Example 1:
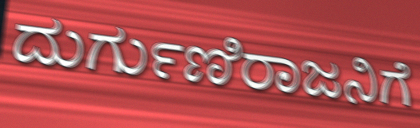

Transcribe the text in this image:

ದುರ್ಗುಣಿರಾಜನಿಗೆ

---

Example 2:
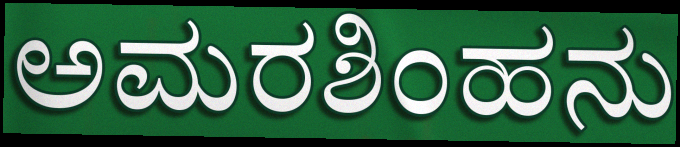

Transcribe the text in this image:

ಅಮರಶಿಂಹನು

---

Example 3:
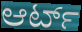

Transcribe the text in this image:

ಆರ್ಟ್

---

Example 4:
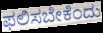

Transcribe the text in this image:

ಫಲಿಸಬೇಕೆಂದು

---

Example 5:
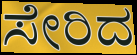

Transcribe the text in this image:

ಸೇರಿದ